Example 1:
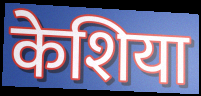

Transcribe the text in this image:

केशिया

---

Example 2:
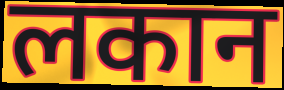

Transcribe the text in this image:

लकान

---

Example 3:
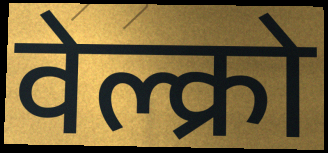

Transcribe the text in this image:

वेल्क्रो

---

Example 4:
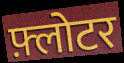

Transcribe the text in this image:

फ़्लोटर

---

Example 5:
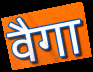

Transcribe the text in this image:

वैगा